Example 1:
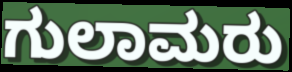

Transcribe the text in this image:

ಗುಲಾಮರು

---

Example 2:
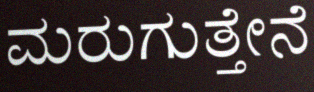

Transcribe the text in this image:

ಮರುಗುತ್ತೇನೆ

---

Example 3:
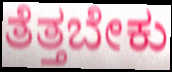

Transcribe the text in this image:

ತೆತ್ತಬೇಕು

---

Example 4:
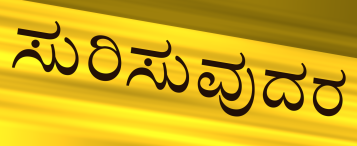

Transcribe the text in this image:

ಸುರಿಸುವುದರ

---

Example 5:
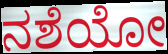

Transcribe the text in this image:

ನಶೆಯೋ